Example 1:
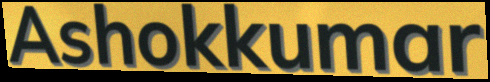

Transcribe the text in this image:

Ashokkumar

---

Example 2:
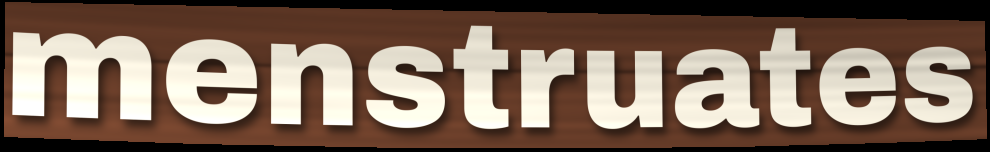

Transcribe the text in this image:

menstruates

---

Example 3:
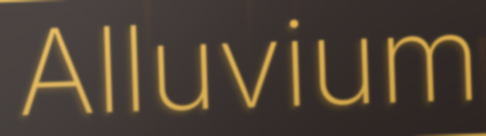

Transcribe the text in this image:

Alluvium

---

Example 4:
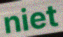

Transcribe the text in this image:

niet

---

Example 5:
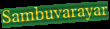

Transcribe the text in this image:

Sambuvarayar